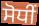
ਸੋਧੀਂ